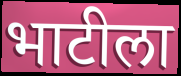
भाटीला